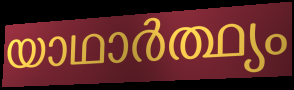
യാഥാർത്ഥ്യം